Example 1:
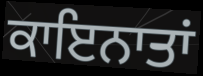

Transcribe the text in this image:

ਕਾਇਨਾਤਾਂ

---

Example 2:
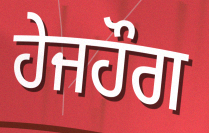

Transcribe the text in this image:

ਹੇਜਹੌਗ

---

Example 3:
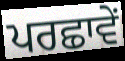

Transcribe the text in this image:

ਪਰਛਾਵੇਂ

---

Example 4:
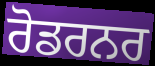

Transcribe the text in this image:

ਰੋਡਰਨਰ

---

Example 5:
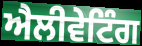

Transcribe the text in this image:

ਐਲੀਵੇਟਿੰਗ